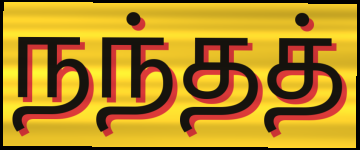
நந்தத்